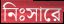
নিঃসারে